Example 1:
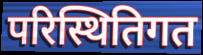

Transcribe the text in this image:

परिस्थितिगत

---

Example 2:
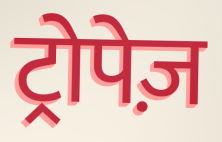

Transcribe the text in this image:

ट्रोपेज़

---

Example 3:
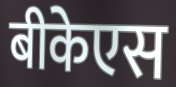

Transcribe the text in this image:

बीकेएस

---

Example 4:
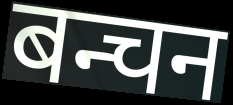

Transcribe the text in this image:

बन्चन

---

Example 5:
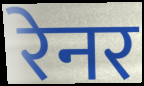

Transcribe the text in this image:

रेनर